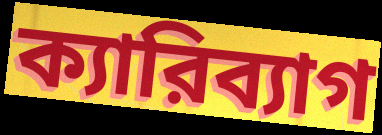
ক্যারিব্যাগ